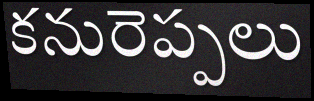
కనురెప్పలు